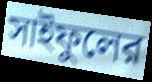
সাইফুলের